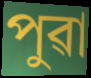
পুৱা